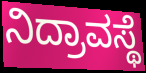
ನಿದ್ರಾವಸ್ಥೆ